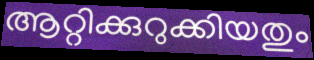
ആറ്റിക്കുറുക്കിയതും